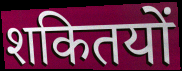
शकितयों